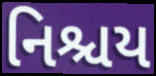
નિશ્ચય